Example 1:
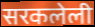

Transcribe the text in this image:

सरकलेली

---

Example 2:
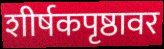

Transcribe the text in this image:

शीर्षकपृष्ठावर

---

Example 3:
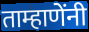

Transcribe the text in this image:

ताम्हाणेंनी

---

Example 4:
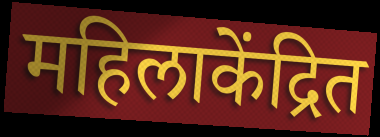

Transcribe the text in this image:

महिलाकेंद्रित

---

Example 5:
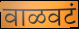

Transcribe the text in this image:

वाळवटं